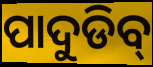
ପାଦୁଡିବ୍